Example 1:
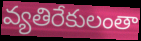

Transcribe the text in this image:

వ్యతిరేకులంతా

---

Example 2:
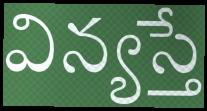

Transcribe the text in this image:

విన్యస్తే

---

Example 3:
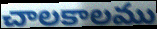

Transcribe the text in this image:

చాలకాలము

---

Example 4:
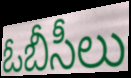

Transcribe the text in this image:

ఓబీసీలు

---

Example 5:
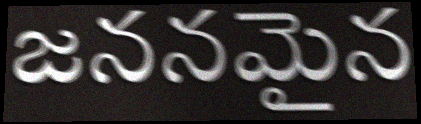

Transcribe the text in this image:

జననమైన